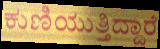
ಕುಣಿಯುತ್ತಿದ್ದಾರೆ